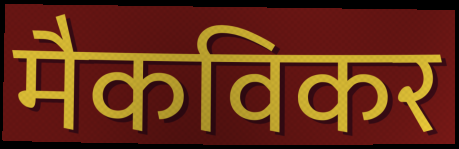
मैकविकर